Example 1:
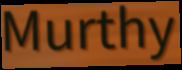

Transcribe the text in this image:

Murthy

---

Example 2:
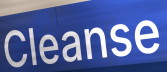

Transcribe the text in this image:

Cleanse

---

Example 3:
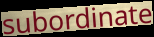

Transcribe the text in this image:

subordinate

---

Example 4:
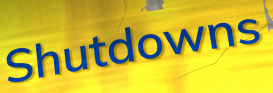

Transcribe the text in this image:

Shutdowns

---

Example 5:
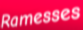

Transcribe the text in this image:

Ramesses